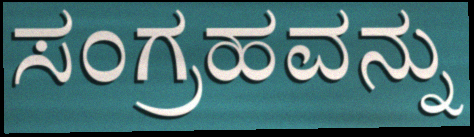
ಸಂಗ್ರಹವನ್ನು